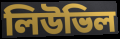
লিউভিল